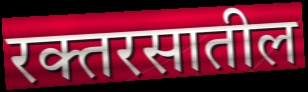
रक्तरसातील